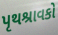
પૃથશ્રાવકો